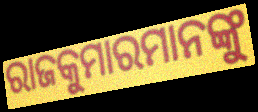
ରାଜକୁମାରମାନଙ୍କୁ